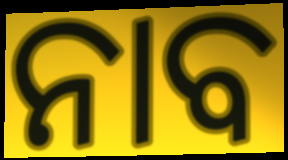
ନାବ